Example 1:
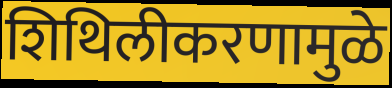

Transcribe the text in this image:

शिथिलीकरणामुळे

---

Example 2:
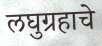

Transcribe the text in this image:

लघुग्रहाचे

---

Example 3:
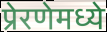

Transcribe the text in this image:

प्रेरणेमध्ये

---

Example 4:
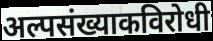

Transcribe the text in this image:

अल्पसंख्याकविरोधी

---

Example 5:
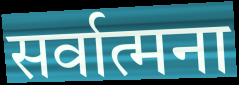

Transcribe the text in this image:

सर्वात्मना